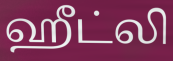
ஹீட்லி